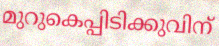
മുറുകെപ്പിടിക്കുവിന്